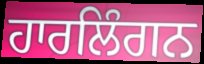
ਹਾਰਲਿੰਗਨ